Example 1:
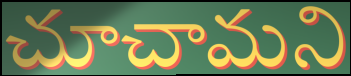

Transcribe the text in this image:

చూచామని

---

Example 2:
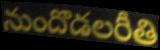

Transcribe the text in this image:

నుందొడలరీతి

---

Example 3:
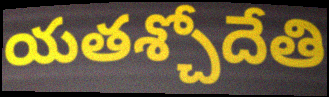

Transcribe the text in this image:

యతశ్చోదేతి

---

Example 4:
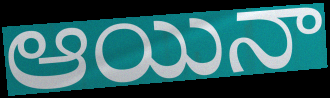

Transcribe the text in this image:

ఆయినా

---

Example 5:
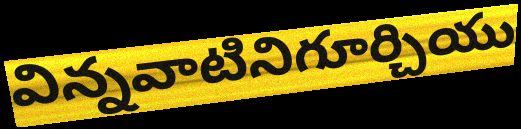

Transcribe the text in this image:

విన్నవాటినిగూర్చియు